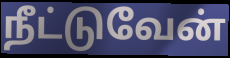
நீட்டுவேன்